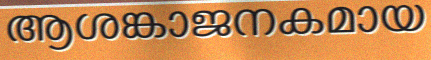
ആശങ്കാജനകമായ